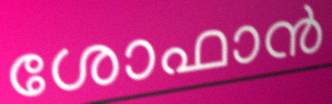
ശോഫാൻ